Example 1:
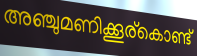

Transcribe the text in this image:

അഞ്ചുമണിക്കൂര്കൊണ്ട്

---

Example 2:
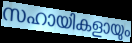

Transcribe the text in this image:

സഹായികളായും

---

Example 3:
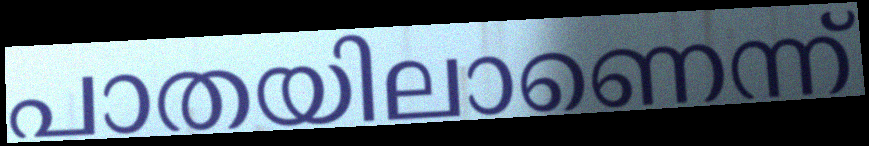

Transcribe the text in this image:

പാതയിലാണെന്ന്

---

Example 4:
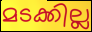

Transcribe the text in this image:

മടക്കില്ല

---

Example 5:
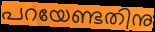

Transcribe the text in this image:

പറയേണ്ടതിനു